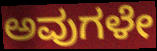
ಅವುಗಳೇ